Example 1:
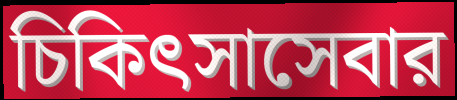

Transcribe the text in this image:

চিকিৎসাসেবার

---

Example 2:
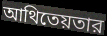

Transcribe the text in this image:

আথিতেয়তার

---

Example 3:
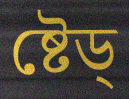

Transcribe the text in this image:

ষ্টেড্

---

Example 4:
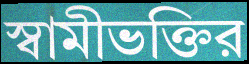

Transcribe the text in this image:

স্বামীভক্তির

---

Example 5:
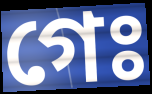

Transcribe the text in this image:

গেঃ